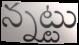
న్నట్టు